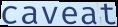
caveat